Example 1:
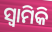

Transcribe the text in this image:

ସ୍ୱାମିକି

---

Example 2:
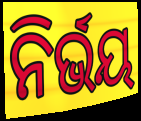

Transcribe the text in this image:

ନିର୍ଭୟ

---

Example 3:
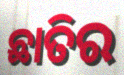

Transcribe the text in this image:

ଛାତିର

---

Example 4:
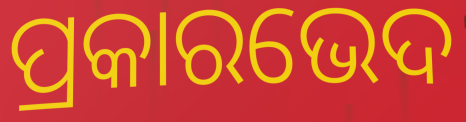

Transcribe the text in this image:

ପ୍ରକାରଭେଦ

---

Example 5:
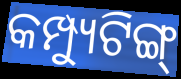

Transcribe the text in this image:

କମ୍ପ୍ୟୁଟିଙ୍ଗ୍